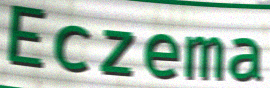
Eczema